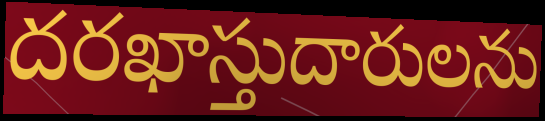
దరఖాస్తుదారులను